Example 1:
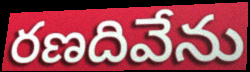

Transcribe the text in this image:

రణదివేను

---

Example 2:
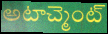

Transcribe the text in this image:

అటాచ్మెంట్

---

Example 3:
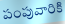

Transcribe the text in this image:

పంపువారికి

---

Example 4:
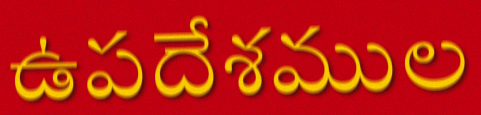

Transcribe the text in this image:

ఉపదేశముల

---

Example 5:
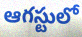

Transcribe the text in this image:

ఆగస్టులో